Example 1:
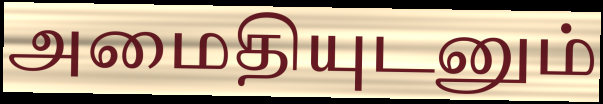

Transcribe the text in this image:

அமைதியுடனும்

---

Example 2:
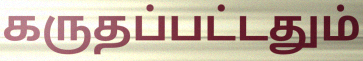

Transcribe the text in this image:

கருதப்பட்டதும்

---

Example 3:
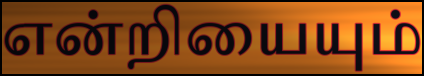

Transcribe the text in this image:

என்றியையும்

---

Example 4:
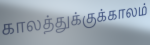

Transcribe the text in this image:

காலத்துக்குக்காலம்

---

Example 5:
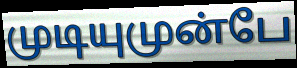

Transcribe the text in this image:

முடியுமுன்பே